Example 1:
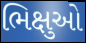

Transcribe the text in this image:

ભિક્ષુઓ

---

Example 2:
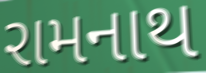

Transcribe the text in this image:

રામનાથ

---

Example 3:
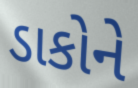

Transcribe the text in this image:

ડાકોને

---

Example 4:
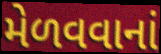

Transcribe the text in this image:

મેળવવાનાં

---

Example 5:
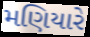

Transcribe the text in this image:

મણિયારે